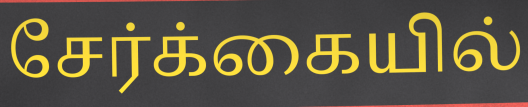
சேர்க்கையில்